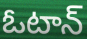
ఓటాన్